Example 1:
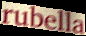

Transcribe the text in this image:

rubella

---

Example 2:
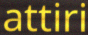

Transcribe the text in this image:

attiri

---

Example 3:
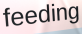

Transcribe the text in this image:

feeding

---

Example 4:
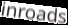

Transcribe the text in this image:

inroads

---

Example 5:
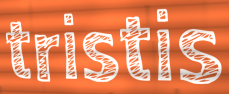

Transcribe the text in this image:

tristis